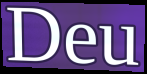
Deu